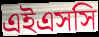
এইএসসি